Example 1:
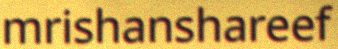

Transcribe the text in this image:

mrishanshareef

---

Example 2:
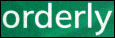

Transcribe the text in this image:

orderly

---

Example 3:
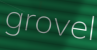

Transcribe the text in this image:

grovel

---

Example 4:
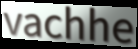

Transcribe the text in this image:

vachhe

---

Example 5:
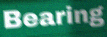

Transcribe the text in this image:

Bearing